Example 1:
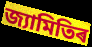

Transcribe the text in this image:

জ্যামিতিৰ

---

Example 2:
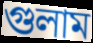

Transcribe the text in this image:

গুলাম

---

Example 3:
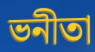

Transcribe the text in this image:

ভনীতা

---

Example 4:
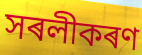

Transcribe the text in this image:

সৰলীকৰণ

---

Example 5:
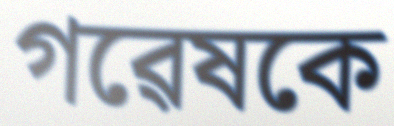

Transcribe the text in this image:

গৱেষকে